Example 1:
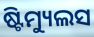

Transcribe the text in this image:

ଷ୍ଟିମ୍ୟୁଲସ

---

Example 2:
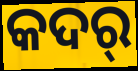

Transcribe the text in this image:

କଦର୍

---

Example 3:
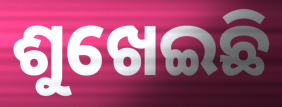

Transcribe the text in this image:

ଶୁଖେଇଛି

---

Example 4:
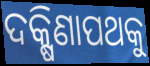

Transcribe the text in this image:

ଦକ୍ଷିଣାପଥକୁ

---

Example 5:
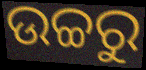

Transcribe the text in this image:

ଉଚ୍ଚରୁ